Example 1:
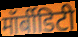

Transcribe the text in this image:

मॉर्बीडिटी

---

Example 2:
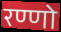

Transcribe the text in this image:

रण्णो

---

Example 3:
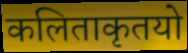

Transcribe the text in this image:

कलिताकृतयो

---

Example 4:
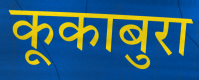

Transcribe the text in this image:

कूकाबुरा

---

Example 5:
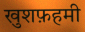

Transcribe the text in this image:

खुशफ़हमी